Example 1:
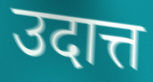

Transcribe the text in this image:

उदात्त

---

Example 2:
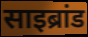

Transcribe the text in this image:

साइब्रांड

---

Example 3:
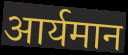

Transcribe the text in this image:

आर्यमान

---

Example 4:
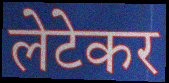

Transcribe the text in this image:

लेटेकर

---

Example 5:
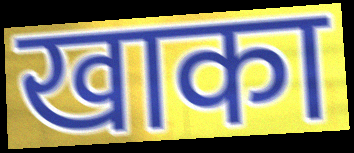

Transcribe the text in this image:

खाका